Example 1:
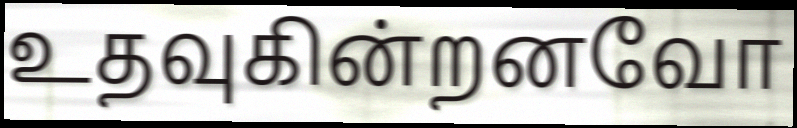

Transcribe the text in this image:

உதவுகின்றனவோ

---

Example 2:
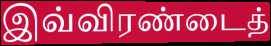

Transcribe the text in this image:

இவ்விரண்டைத்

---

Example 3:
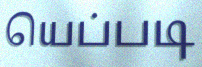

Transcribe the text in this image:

யெப்படி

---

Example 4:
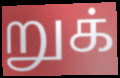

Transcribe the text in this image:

றுக்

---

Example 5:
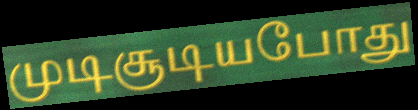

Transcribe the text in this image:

முடிசூடியபோது